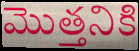
మొత్తనికి